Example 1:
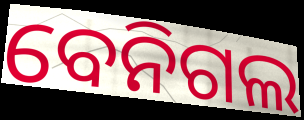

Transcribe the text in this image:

ବେନିଗଲ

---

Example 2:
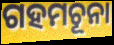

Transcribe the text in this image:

ଗହମଚୂନା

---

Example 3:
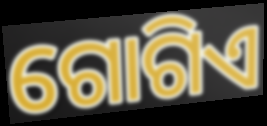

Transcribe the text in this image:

ଗୋଗିଏ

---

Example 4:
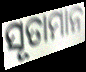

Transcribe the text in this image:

ସୂତାମାନ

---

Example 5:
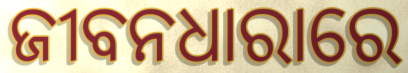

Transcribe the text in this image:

ଜୀବନଧାରାରେ